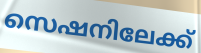
സെഷനിലേക്ക്